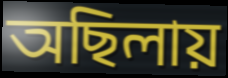
অছিলায়